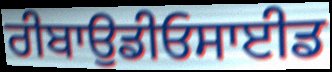
ਰੀਬਾਉਡੀਓਸਾਈਡ